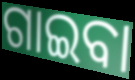
ଗାଇବା